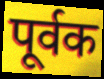
पूर्वक